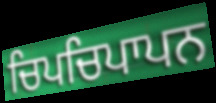
ਚਿਪਚਿਪਾਪਨ